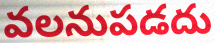
వలనుపడదు